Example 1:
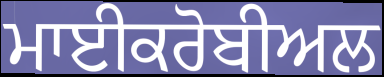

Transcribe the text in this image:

ਮਾਈਕਰੋਬੀਅਲ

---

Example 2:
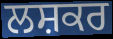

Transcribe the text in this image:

ਲਸ਼ਕਰ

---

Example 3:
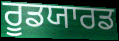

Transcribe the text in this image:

ਰੂਡਯਾਰਡ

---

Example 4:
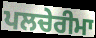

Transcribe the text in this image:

ਪਲਚੇਰੀਮਾ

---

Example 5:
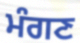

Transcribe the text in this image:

ਮੰਗਣ